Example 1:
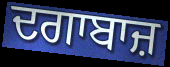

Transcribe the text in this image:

ਦਗਾਬਾਜ਼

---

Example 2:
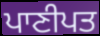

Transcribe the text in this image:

ਪਾਣੀਪਤ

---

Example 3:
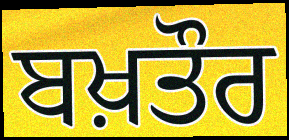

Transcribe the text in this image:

ਬਖ਼ਤੌਰ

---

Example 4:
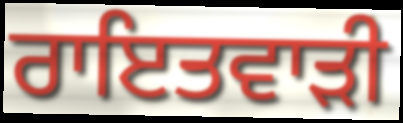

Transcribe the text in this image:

ਰਾਇਤਵਾੜੀ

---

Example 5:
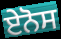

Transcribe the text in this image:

ਏਨੋਸ